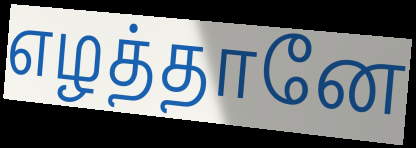
எழத்தானே